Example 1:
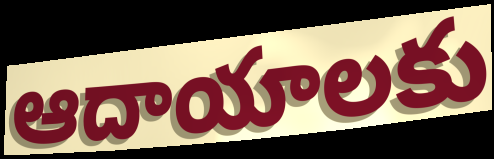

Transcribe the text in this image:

ఆదాయాలకు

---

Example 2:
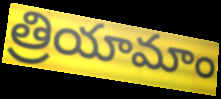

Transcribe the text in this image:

త్రియామాం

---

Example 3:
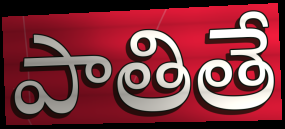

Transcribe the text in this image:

పాతితే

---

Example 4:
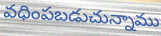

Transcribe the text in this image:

వధింపబడుచున్నాము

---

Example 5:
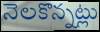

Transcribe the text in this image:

నెలకొన్నట్లు